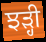
ਝੜ੍ਹੀ